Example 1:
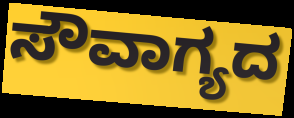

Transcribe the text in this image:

ಸೌವಾಗ್ಯದ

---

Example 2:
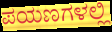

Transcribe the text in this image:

ಪಯಣಗಳಲ್ಲಿ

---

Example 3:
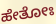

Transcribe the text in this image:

ಹೇತೋಃ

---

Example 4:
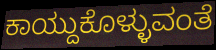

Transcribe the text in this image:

ಕಾಯ್ದುಕೊಳ್ಳುವಂತೆ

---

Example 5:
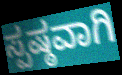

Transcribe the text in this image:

ಸ್ಪಷ್ಠವಾಗಿ